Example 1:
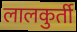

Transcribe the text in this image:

लालकुर्ती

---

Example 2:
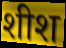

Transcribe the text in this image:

शीश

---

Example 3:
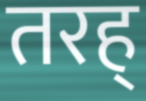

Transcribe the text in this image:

तरह्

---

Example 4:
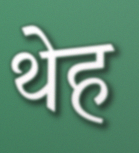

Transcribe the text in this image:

थेह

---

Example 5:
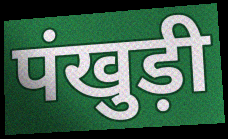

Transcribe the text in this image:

पंखुड़ी